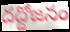
దద్దోజనం